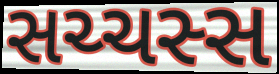
સચ્ચસ્સ